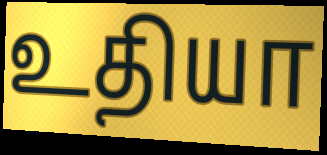
உதியா